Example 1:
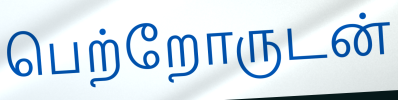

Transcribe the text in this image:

பெற்றோருடன்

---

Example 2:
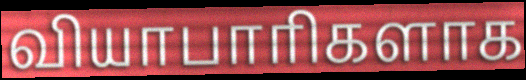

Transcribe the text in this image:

வியாபாரிகளாக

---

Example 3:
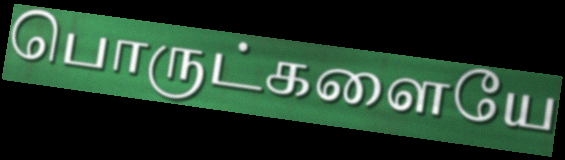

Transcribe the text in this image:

பொருட்களையே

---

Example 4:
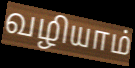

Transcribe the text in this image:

வழியாம்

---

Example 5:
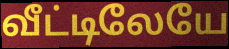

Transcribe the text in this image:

வீட்டிலேயே